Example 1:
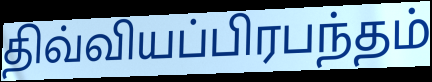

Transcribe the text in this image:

திவ்வியப்பிரபந்தம்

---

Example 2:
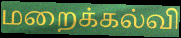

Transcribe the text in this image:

மறைக்கல்வி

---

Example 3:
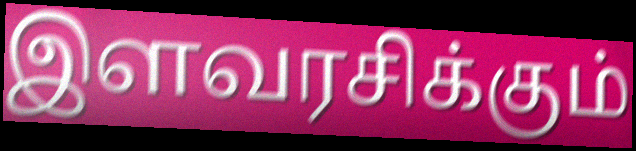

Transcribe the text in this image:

இளவரசிக்கும்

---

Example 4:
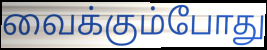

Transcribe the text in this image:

வைக்கும்போது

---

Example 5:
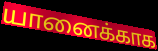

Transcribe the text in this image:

யானைக்காக